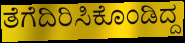
ತೆಗೆದಿರಿಸಿಕೊಂಡಿದ್ದ